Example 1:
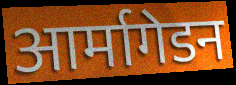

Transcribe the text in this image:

आर्मागेडन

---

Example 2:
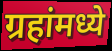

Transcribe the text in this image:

ग्रहांमध्ये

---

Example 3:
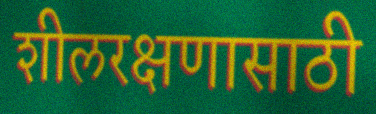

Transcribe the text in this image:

शीलरक्षणासाठी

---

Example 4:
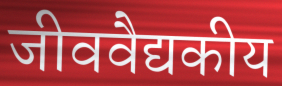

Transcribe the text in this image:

जीववैद्यकीय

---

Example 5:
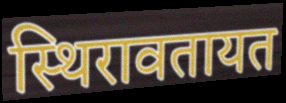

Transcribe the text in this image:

स्थिरावतायत